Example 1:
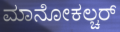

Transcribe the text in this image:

ಮಾನೋಕಲ್ಚರ್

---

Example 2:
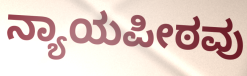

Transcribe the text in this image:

ನ್ಯಾಯಪೀಠವು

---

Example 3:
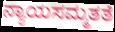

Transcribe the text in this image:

ನ್ಯಾಯಸಮ್ಮತತೆ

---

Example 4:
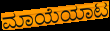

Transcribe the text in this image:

ಮಾಯೆಯಾಟ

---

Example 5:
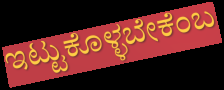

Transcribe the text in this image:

ಇಟ್ಟುಕೊಳ್ಳಬೇಕೆಂಬ